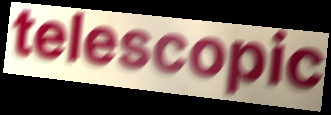
telescopic